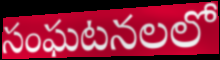
సంఘటనలలో